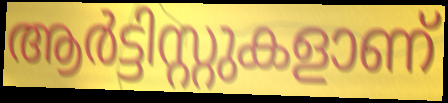
ആർട്ടിസ്റ്റുകളാണ്